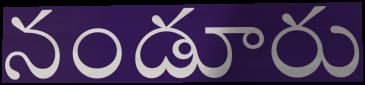
నండూరు